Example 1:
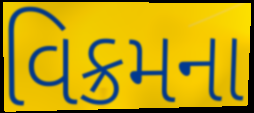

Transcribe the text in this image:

વિક્રમના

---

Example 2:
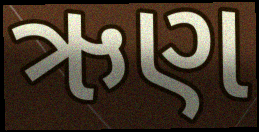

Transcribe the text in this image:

ઋણ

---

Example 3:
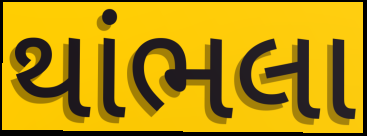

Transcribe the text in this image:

થાંભલા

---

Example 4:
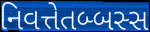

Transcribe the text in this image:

નિવત્તેતબ્બસ્સ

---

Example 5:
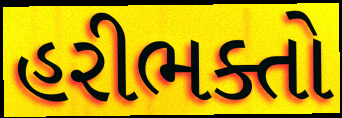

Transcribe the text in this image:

હરીભક્તો